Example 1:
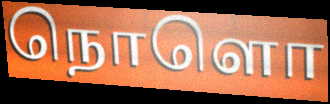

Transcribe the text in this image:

நொளொ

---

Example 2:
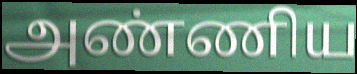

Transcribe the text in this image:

அண்ணிய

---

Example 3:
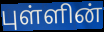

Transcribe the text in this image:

புள்ளின்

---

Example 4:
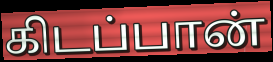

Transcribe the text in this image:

கிடப்பான்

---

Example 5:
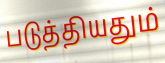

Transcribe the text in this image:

படுத்தியதும்